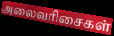
அலைவரிசைகள்